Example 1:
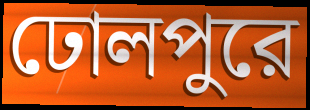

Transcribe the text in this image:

ঢোলপুরে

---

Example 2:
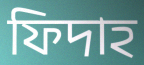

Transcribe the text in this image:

ফিদাহ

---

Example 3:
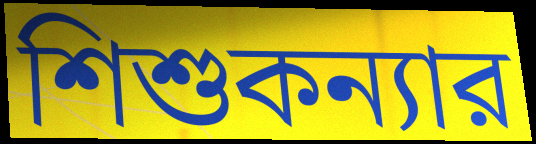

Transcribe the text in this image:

শিশুকন্যার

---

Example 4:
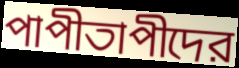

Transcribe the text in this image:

পাপীতাপীদের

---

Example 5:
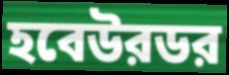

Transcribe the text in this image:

হবেউরডর